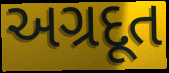
અગ્રદૂત